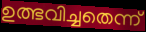
ഉത്ഭവിച്ചതെന്ന്